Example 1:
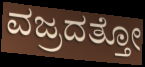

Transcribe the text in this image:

ವಜ್ರದತ್ತೋ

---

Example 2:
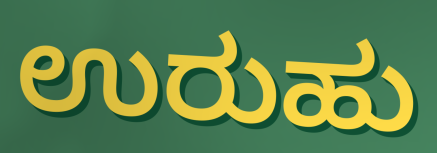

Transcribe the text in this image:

ಉರುಹು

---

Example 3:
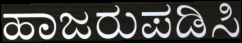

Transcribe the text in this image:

ಹಾಜರುಪಡಿಸಿ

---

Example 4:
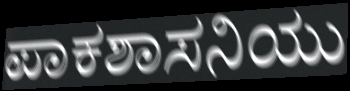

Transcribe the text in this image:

ಪಾಕಶಾಸನಿಯು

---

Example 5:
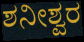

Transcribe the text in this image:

ಶನೀಶ್ವರ